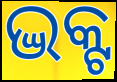
ଦ୍ଭକ୍ଟ